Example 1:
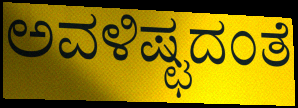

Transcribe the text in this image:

ಅವಳಿಷ್ಟದಂತೆ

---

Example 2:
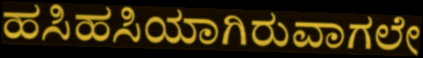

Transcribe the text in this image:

ಹಸಿಹಸಿಯಾಗಿರುವಾಗಲೇ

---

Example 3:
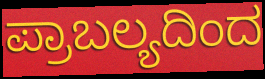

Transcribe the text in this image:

ಪ್ರಾಬಲ್ಯದಿಂದ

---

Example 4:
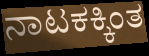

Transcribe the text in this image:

ನಾಟಕಕ್ಕಿಂತ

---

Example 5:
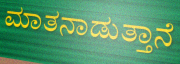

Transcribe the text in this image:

ಮಾತನಾಡುತ್ತಾನೆ